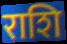
राशि